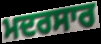
ਮਦਰਸਾਰ